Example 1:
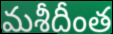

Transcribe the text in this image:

మశీదీంత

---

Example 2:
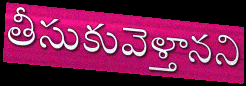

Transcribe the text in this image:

తీసుకువెళ్తానని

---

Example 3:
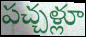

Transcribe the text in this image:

పచ్చళ్లూ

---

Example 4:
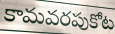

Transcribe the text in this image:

కామవరపుకోట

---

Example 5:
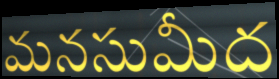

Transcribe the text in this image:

మనసుమీద